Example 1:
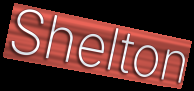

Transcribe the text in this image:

Shelton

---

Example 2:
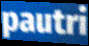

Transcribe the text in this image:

pautri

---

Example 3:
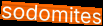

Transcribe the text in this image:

sodomites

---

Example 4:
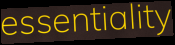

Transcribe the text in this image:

essentiality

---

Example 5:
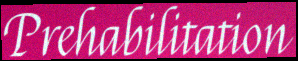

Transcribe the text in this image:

Prehabilitation